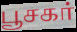
பூசகர்